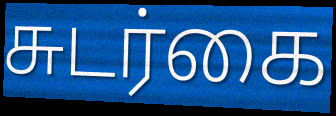
சுடர்கை